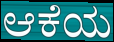
ಆಕೆಯ